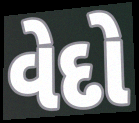
વેદો